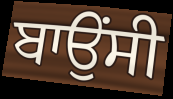
ਬਾਉਂਸੀ